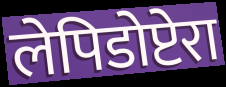
लेपिडोप्टेरा